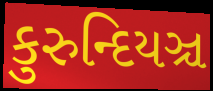
કુરુન્દિયઞ્ચ